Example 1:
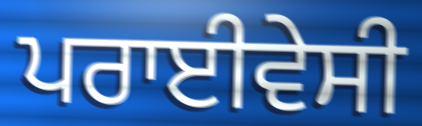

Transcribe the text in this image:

ਪਰਾਈਵੇਸੀ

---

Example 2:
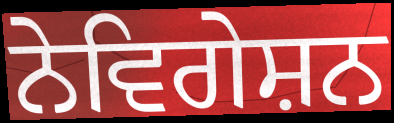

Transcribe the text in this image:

ਨੇਵਿਗੇਸ਼ਨ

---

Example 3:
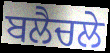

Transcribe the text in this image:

ਬਲੈਚਲੇ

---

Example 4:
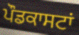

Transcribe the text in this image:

ਪੌਡਕਾਸਟਾਂ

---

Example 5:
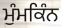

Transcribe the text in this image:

ਮੁੰਮਕਿੰਨ